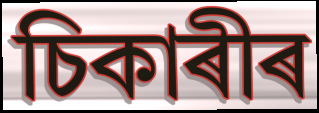
চিকাৰীৰ